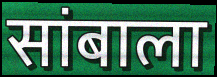
सांबाला